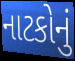
નાટકોનું